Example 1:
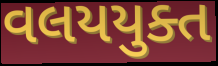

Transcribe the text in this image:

વલયયુક્ત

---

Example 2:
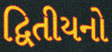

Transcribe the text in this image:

દ્વિતીયનો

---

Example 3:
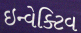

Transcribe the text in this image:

ઇન્વેક્ટિવ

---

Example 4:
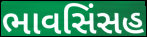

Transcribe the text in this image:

ભાવસિંસહ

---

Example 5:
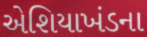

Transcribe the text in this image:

એશિયાખંડના